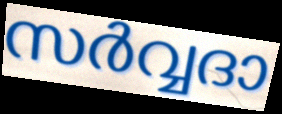
സർവ്വദാ